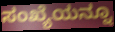
ಸಂಖ್ಯೆಯನ್ನೂ